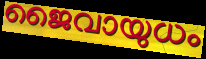
ജൈവായുധം